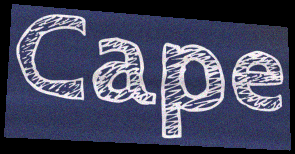
Cape